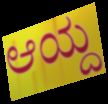
ಆಯ್ದ